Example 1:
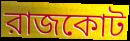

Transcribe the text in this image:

রাজকোট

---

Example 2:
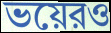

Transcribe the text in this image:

ভয়েরও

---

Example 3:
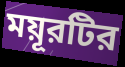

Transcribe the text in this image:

ময়ূরটির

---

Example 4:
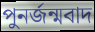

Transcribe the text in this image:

পুনর্জন্মবাদ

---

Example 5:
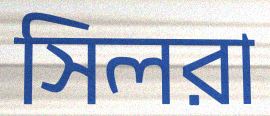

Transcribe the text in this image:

সিলরা